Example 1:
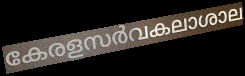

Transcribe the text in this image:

കേരളസർവകലാശാല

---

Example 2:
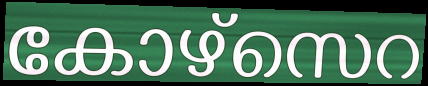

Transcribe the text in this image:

കോഴ്സെറ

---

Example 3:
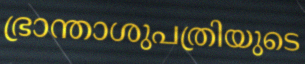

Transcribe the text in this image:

ഭ്രാന്താശുപത്രിയുടെ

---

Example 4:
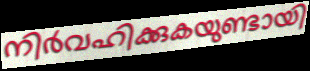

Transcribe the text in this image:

നിർവഹിക്കുകയുണ്ടായി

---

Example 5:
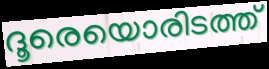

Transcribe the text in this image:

ദൂരെയൊരിടത്ത്